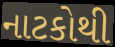
નાટકોથી